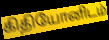
கிதியோனிடம்